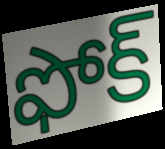
ఫోక్